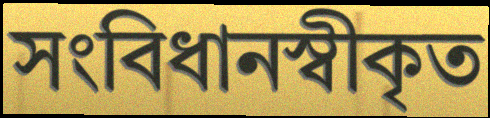
সংবিধানস্বীকৃত